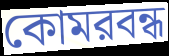
কোমরবন্ধ